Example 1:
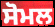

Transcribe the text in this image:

ਸੋਮਲ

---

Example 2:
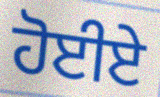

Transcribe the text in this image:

ਹੋਈਏ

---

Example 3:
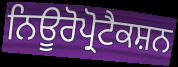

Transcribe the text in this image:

ਨਿਊਰੋਪ੍ਰੋਟੈਕਸ਼ਨ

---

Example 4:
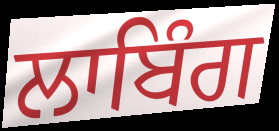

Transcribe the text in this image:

ਲਾਬਿੰਗ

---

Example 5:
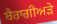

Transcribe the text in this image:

ਬੈਰਾਗੀਅੜੇ